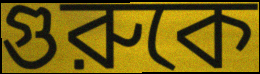
গুরুকে